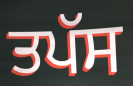
ਤਪੱਸ